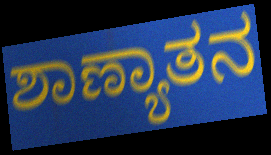
ಶಾಣ್ಯಾತನ